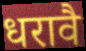
धरावै